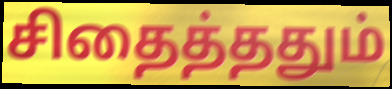
சிதைத்ததும்